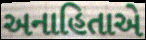
અનાહિતાએ